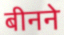
बीनने